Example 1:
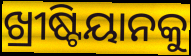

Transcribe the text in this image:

ଖ୍ରୀଷ୍ଟିୟାନକୁ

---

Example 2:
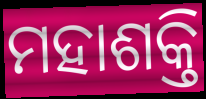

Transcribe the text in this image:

ମହାଶକ୍ତି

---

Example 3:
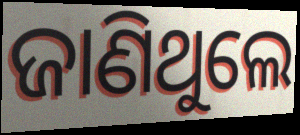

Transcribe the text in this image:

ଜାଣିଥୁଲେ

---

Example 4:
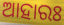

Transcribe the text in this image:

ଆହାରଃ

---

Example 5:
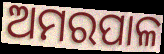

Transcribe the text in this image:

ଅମରପାଳ